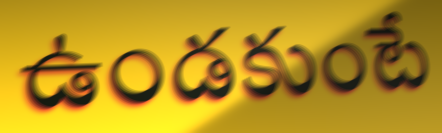
ఉండకుంటే